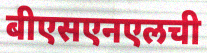
बीएसएनएलची